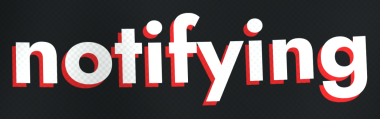
notifying